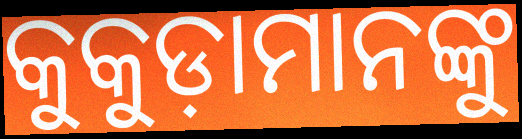
କୁକୁଡ଼ାମାନଙ୍କୁ